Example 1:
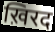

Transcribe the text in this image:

ख़िरद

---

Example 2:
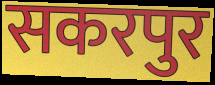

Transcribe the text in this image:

सकरपुर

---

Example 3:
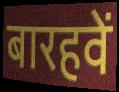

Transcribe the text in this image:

बारहवें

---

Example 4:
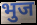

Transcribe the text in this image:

भुज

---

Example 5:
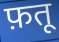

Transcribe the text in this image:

फ़तू